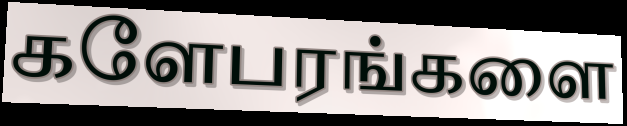
களேபரங்களை